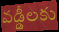
వడ్డీలకు